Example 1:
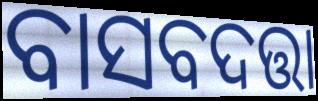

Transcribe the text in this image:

ବାସବଦତ୍ତା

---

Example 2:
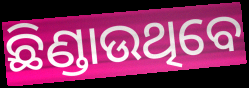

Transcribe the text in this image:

ଛିଣ୍ଡାଉଥିବେ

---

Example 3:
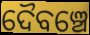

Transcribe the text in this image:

ଦୈବଞ୍ଚେ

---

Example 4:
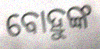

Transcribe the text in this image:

ବୋହୁଙ୍କ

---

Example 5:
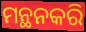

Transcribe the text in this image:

ମନ୍ଥନକରି